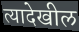
त्यादेखील